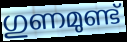
ഗുണമുണ്ട്